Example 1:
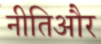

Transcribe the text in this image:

नीतिऔर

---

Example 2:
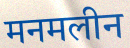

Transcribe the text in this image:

मनमलीन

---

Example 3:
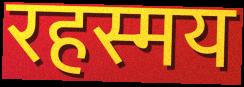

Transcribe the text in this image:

रहस्मय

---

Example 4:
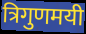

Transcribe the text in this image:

त्रिगुणमयी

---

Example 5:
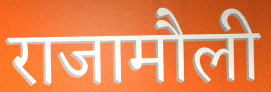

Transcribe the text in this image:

राजामौली